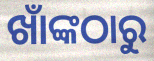
ଖାଁଙ୍କଠାରୁ